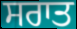
ਸਰਾਤ